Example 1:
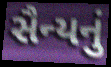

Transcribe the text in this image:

સૈન્યનું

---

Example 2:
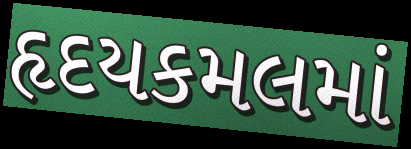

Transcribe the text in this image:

હૃદયકમલમાં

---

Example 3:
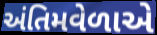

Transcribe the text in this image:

અંતિમવેળાએ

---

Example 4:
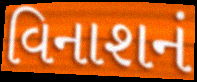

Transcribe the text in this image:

વિનાશનં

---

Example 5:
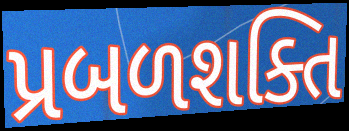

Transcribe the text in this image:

પ્રબળશક્તિ